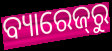
ବ୍ୟାରେଜ୍‌ରୁ